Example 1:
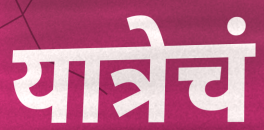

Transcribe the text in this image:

यात्रेचं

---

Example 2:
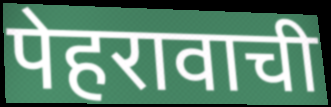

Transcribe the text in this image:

पेहरावाची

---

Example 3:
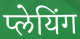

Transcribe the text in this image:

प्लेयिंग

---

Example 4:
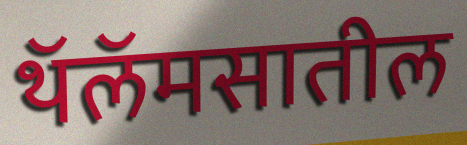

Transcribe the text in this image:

थॅलॅमसातील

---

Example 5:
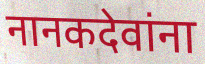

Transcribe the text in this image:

नानकदेवांना